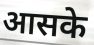
आसके